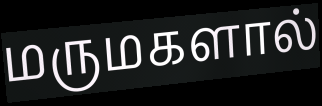
மருமகளால்